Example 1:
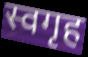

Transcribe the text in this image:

स्वगृह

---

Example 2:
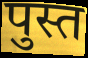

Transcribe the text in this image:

पुस्त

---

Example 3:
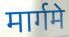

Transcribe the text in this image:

मार्गमे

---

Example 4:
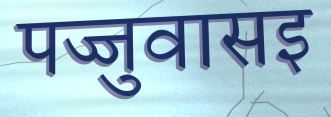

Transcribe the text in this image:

पज्जुवासइ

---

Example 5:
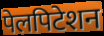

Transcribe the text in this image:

पेलपिटेशन